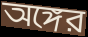
অঙ্গের